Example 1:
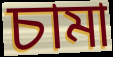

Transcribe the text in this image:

চামা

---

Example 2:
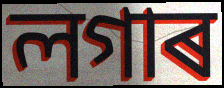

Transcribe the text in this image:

লগাৰ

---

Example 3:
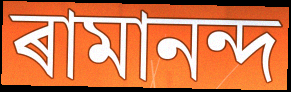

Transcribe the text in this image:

ৰামানন্দ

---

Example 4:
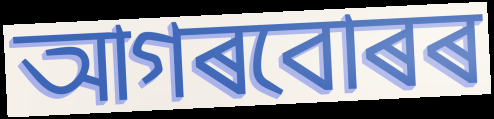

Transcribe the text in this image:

আগৰবোৰৰ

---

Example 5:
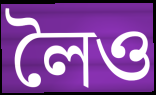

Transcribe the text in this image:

লৈও